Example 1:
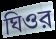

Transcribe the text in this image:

ঘিওর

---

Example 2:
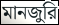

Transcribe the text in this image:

মানজুরি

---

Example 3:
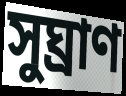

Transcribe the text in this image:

সুঘ্রাণ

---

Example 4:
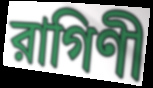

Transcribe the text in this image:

রাগিণী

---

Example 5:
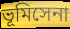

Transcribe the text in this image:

ভূমিসেনা